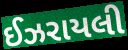
ઈઝરાયલી